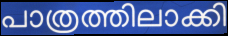
പാത്രത്തിലാക്കി